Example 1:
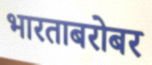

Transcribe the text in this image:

भारताबरोबर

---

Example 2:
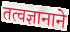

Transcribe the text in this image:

तत्वज्ञानाने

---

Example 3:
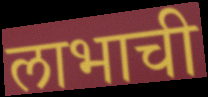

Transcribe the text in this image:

लाभाची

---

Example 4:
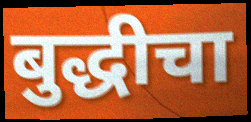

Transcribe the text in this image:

बुद्धीचा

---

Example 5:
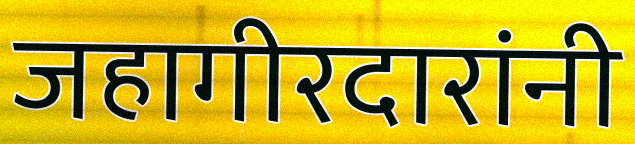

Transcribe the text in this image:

जहागीरदारांनी